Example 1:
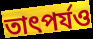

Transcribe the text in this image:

তাৎপৰ্যও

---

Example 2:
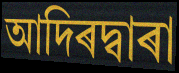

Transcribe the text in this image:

আদিৰদ্বাৰা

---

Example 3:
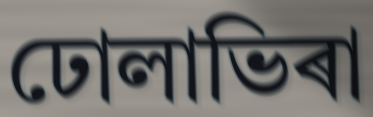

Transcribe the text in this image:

ঢোলাভিৰা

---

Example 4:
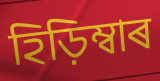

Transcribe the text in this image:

হিড়িম্বাৰ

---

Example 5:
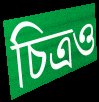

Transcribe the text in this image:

চিত্ৰও